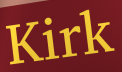
Kirk